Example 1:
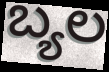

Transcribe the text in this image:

ಬ್ಯಲ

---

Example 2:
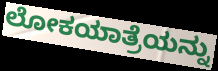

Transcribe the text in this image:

ಲೋಕಯಾತ್ರೆಯನ್ನು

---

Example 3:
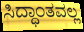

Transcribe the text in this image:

ಸಿದ್ಧಾಂತವಲ್ಲ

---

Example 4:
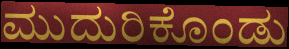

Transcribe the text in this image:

ಮುದುರಿಕೊಂಡು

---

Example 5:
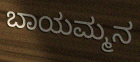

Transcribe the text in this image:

ಬಾಯಮ್ಮನ